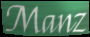
Manz